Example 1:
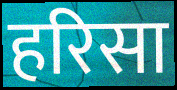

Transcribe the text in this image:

हरिसा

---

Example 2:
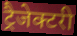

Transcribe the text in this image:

ट्रैजेक्टरी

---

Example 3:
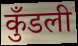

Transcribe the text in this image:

कुँडली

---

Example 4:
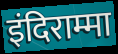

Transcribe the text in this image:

इंदिराम्मा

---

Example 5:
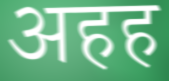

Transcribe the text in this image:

अहह